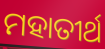
ମହାତୀର୍ଥ